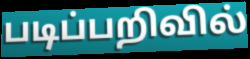
படிப்பறிவில்